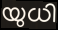
യുധി